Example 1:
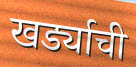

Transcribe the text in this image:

खर्ड्याची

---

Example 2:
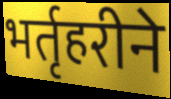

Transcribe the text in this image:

भर्तृहरीने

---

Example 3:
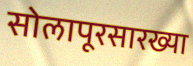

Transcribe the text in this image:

सोलापूरसारख्या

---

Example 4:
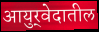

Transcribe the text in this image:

आयुर्वेदातील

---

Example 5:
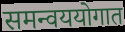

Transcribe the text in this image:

समन्वययोगात